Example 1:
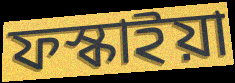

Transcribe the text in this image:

ফস্কাইয়া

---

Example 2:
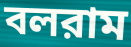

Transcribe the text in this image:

বলরাম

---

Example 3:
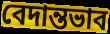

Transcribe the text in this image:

বেদান্তভাব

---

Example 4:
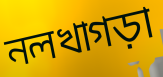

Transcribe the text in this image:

নলখাগড়া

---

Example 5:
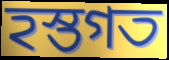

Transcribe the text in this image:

হস্তগত